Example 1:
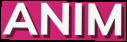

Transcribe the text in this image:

ANIM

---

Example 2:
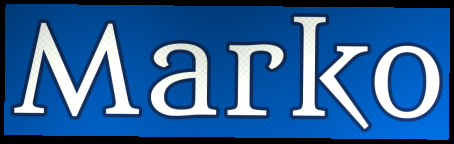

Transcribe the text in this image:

Marko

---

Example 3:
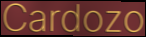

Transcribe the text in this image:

Cardozo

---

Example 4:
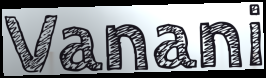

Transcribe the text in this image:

Vanani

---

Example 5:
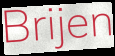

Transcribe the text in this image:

Brijen